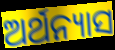
ଅର୍ଥନ୍ୟାସ